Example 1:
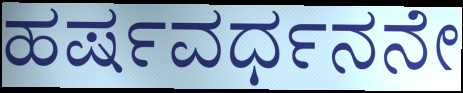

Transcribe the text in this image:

ಹರ್ಷವರ್ಧನನೇ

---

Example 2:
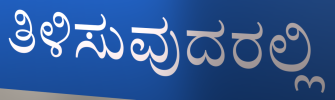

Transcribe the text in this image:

ತಿಳಿಸುವುದರಲ್ಲಿ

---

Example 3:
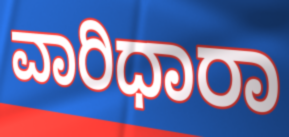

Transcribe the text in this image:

ವಾರಿಧಾರಾ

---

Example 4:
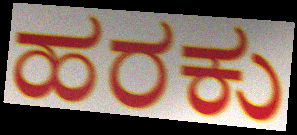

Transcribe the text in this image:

ಹರಕು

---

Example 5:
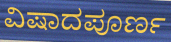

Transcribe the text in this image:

ವಿಷಾದಪೂರ್ಣ